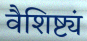
वैशिष्ट्यं